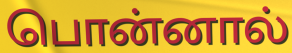
பொன்னால்